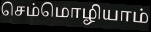
செம்மொழியாம்